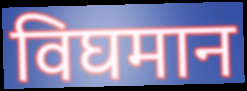
विघमान